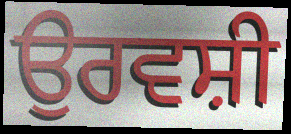
ਉਰਵਸ਼ੀ